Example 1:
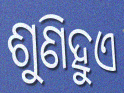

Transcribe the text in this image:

ଶୁଣିହୁଏ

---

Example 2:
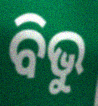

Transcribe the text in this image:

ବିଭୁ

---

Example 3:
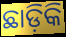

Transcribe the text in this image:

ଛାଡ଼ିକି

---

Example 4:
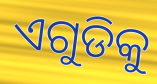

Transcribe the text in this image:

ଏଗୁଡିକୁ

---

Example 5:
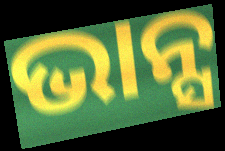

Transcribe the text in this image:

ଭାନ୍ସ